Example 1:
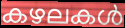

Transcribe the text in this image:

കഴലകൾ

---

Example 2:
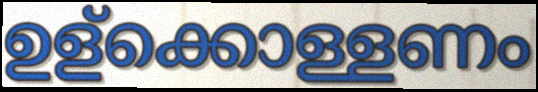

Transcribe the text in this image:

ഉള്ക്കൊള്ളണം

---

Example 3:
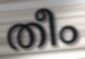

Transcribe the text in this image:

തീം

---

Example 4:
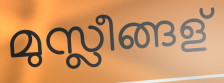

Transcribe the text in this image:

മുസ്ലീങ്ങള്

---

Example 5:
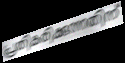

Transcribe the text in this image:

പ്രതികരിക്കുന്നതിന്